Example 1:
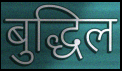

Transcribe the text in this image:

बुद्धिल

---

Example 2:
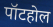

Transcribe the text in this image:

पॉटहोल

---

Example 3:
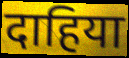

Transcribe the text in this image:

दाहिया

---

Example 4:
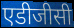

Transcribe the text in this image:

एडीजीसी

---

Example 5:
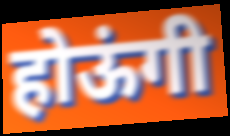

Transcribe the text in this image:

होऊंगी